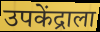
उपकेंद्राला